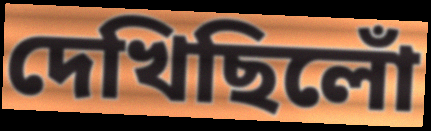
দেখিছিলোঁ